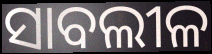
ସାବଲୀଳ